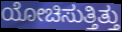
ಯೋಚಿಸುತ್ತಿತ್ತು